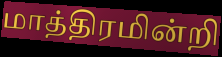
மாத்திரமின்றி